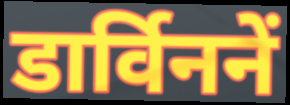
डार्विननें